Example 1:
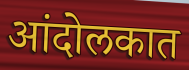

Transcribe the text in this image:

आंदोलकात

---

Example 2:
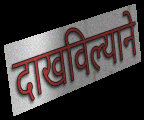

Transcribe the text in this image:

दाखविल्याने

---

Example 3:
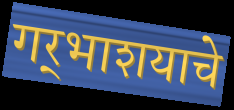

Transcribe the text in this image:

गर्भाशयाचे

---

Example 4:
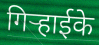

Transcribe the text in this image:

गिर्‍हाईके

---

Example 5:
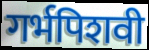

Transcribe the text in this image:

गर्भपिशवी